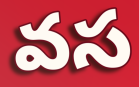
వస